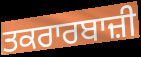
ਤਕਰਾਰਬਾਜ਼ੀ